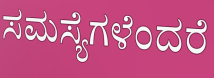
ಸಮಸ್ಯೆಗಳೆಂದರೆ